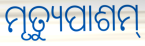
ମୃତ୍ୟୁପାଶମ୍